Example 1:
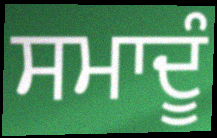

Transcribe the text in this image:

ਸਮਾਦੂੰ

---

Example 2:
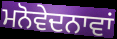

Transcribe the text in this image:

ਮਨੋਵੇਦਨਾਵਾਂ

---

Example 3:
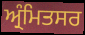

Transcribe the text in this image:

ਅ੍ਰੰਮਿਤਸਰ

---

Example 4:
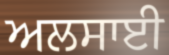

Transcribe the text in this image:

ਅਲਸਾਈ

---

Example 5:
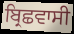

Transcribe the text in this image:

ਬ੍ਰਿਛਵਾਸੀ